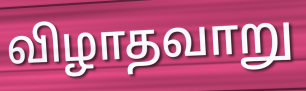
விழாதவாறு